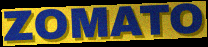
ZOMATO